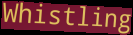
Whistling